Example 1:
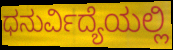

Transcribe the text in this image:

ಧನುರ್ವಿದ್ಯೆಯಲ್ಲಿ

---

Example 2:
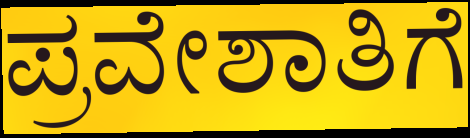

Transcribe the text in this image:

ಪ್ರವೇಶಾತಿಗೆ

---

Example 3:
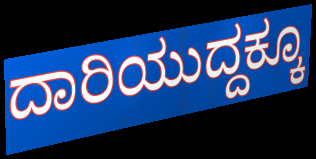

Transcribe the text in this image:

ದಾರಿಯುದ್ದಕ್ಕೂ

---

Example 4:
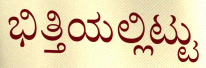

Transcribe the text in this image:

ಭಿತ್ತಿಯಲ್ಲಿಟ್ಟು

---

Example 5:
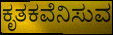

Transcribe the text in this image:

ಕೃತಕವೆನಿಸುವ